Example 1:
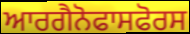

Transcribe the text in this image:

ਆਰਗੈਨੋਫਾਸਫੋਰਸ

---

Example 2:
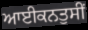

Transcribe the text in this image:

ਆਈਕਨਤੁਸੀਂ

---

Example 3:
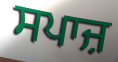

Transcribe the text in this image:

ਸਪਾਜ਼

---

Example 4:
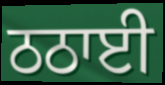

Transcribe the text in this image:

ਠਠਾਈ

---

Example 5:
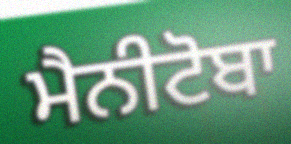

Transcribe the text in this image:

ਮੈਨੀਟੋਬਾ